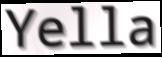
Yella